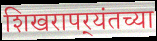
शिखरापर्यंतच्या